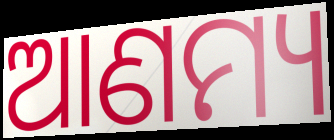
ଆଣମ୍ୟ